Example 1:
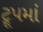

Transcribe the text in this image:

ટ્રૂપમાં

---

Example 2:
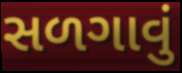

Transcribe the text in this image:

સળગાવું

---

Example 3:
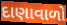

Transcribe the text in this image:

દાણાવાળો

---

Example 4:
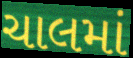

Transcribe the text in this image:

ચાલમાં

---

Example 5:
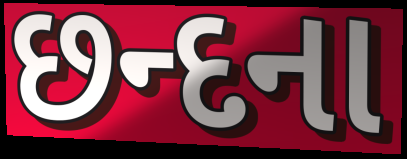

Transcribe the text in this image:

છન્દના